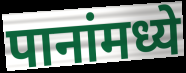
पानांमध्ये